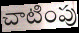
చాటింపు